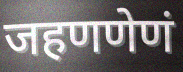
जहणणेणं